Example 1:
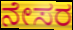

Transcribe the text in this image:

ನೇಸರ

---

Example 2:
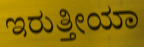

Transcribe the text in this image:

ಇರುತ್ತೀಯಾ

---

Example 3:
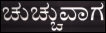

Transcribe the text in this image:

ಚುಚ್ಚುವಾಗ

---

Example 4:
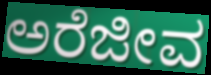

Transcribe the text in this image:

ಅರೆಜೀವ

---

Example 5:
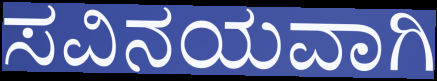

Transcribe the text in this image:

ಸವಿನಯವಾಗಿ